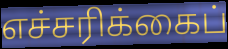
எச்சரிக்கைப்